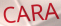
CARA